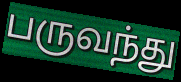
பருவந்து